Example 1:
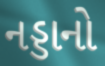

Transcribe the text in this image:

નડ્ડાનો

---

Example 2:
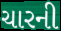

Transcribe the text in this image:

ચારની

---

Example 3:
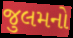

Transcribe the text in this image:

જુલમનો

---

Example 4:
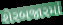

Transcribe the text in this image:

શેરબજારમાં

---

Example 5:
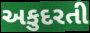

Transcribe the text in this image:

અકુદરતી